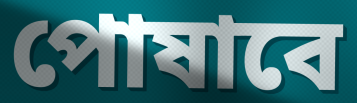
পোষাবে